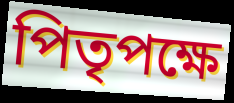
পিতৃপক্ষে